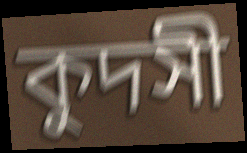
কুদসী